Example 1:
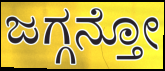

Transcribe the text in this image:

ಜಗ್ಗನ್ತೋ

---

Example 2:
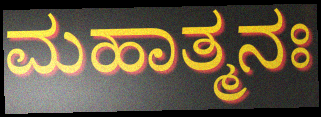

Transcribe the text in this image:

ಮಹಾತ್ಮನಃ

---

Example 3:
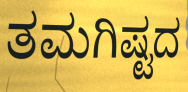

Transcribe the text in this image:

ತಮಗಿಷ್ಟದ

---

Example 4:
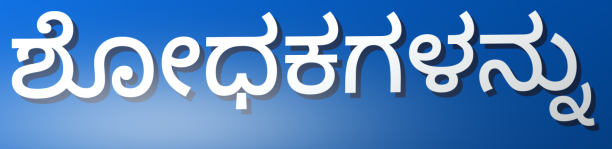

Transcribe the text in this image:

ಶೋಧಕಗಳನ್ನು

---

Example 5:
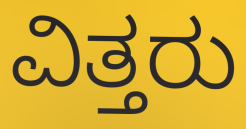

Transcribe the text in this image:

ವಿತ್ತರು